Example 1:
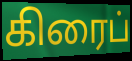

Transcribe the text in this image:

கிரைப்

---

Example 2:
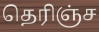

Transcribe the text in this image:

தெரிஞ்ச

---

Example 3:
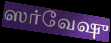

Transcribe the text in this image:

ஸர்வேஷு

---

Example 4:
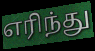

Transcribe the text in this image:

எரிந்து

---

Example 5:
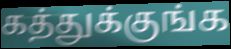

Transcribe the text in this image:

கத்துக்குங்க